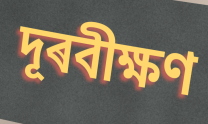
দূৰবীক্ষণ